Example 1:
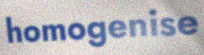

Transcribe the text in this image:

homogenise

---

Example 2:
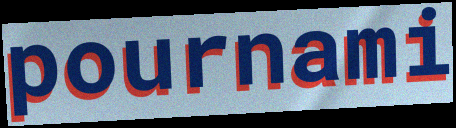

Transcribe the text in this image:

pournami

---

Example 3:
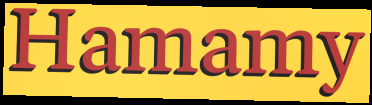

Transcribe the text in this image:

Hamamy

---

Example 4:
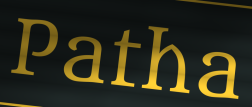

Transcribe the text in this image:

Patha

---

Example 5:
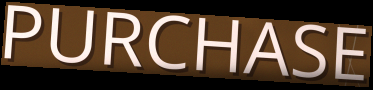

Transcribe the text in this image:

PURCHASE